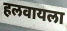
हलवायला